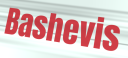
Bashevis